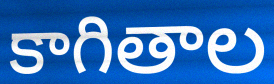
కాగితాల